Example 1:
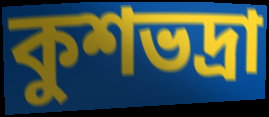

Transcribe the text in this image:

কুশভদ্রা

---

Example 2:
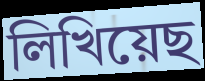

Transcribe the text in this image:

লিখিয়েছ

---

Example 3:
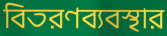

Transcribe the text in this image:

বিতরণব্যবস্থার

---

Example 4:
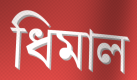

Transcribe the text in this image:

ধিমাল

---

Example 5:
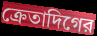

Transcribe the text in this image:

ক্রেতাদিগের